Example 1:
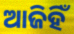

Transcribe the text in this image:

ଆଜିହିଁ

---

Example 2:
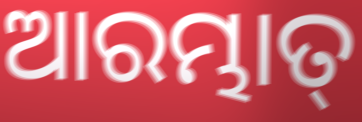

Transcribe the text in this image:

ଆରମ୍ଭାତ୍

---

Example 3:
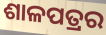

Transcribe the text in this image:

ଶାଳପତ୍ରର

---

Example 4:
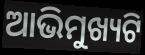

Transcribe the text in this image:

ଆଭିମୁଖ୍ୟଟି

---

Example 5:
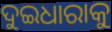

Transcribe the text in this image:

ଦୁଇଧାରାକୁ